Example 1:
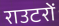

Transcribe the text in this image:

राउटरों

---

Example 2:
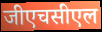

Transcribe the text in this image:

जीएचसीएल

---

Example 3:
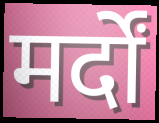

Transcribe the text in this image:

मर्दों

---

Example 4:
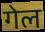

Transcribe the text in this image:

गेल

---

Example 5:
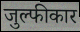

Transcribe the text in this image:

जुल्फीकार